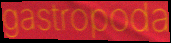
gastropoda